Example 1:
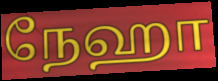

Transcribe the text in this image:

நேஹா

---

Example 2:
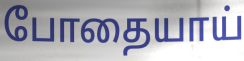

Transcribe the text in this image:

போதையாய்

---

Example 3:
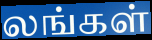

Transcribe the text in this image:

லங்கள்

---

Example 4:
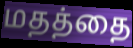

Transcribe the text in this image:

மதத்தை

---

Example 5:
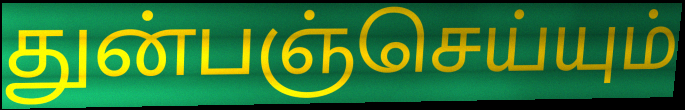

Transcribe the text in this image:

துன்பஞ்செய்யும்